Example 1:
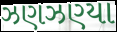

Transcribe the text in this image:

ઝણઝણ્યા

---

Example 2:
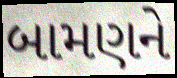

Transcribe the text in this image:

બામણને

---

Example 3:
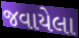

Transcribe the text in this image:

જવાયેલા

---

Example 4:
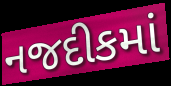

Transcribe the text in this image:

નજદીકમાં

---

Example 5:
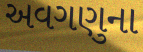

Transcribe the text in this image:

અવગણુના